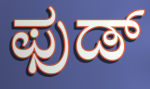
ಫುಡ್